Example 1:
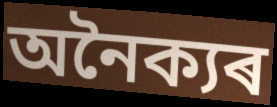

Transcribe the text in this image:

অনৈক্যৰ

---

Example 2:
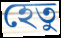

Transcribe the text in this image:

হেতু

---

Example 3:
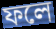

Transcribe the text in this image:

ফলে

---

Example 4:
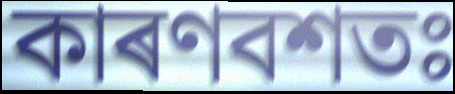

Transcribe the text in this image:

কাৰণবশতঃ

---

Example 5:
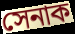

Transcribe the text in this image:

সেনাক